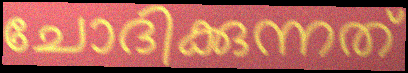
ചോദിക്കുന്നത്